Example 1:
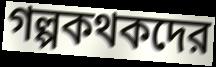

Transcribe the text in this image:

গল্পকথকদের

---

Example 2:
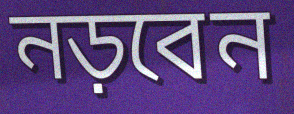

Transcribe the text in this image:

নড়বেন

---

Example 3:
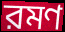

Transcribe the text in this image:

রমণ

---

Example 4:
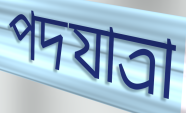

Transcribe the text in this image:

পদযাত্রা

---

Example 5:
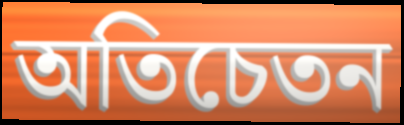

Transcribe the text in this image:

অতিচেতন